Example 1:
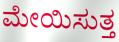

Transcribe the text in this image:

ಮೇಯಿಸುತ್ತ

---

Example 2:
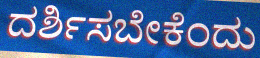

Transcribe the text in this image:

ದರ್ಶಿಸಬೇಕೆಂದು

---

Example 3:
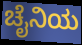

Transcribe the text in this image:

ಚೈನಿಯ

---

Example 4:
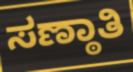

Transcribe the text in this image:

ಸಣ್ಠಾತಿ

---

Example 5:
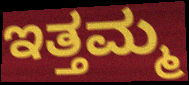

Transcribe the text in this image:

ಇತ್ತಮ್ಮ